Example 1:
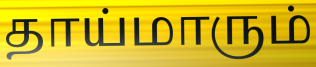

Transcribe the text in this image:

தாய்மாரும்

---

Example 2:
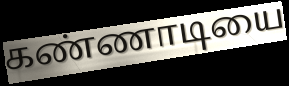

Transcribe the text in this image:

கண்ணாடியை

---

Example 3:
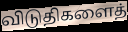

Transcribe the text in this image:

விடுதிகளைத்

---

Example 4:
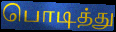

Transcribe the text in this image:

பொடித்து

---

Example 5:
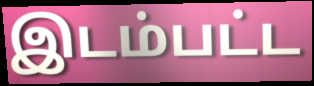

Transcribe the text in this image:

இடம்பட்ட